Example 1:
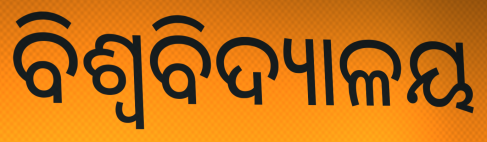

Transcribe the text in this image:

ବିଶ୍ଵବିଦ୍ୟାଳୟ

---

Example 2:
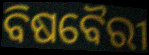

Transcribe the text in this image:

ବିଷବୈରୀ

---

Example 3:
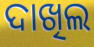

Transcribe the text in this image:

ଦାଖିଲ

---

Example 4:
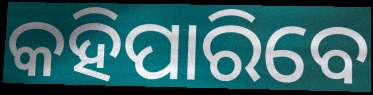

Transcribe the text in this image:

କହିପାରିବେ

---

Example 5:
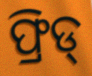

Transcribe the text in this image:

ଫ୍ରିଡ୍